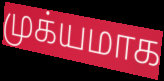
முக்யமாக